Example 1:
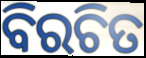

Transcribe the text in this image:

ବିରଚିତ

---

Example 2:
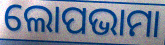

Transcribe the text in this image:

ଲୋପଭାମା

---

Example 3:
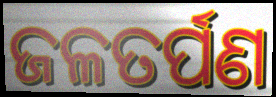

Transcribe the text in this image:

ଜଳତର୍ପଣ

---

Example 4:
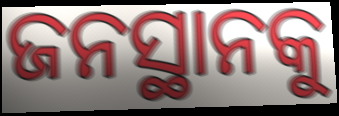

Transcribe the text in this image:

ଜନସ୍ଥାନକୁ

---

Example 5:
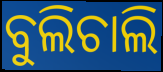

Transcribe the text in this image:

ବୁଲିଚାଲି